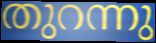
തുറന്നു